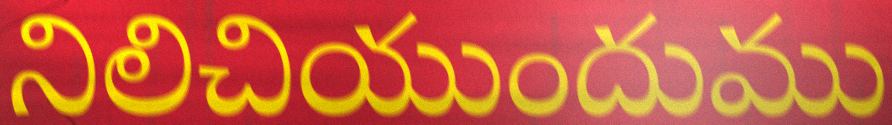
నిలిచియుందుము